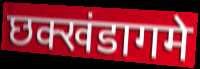
छक्खंडागमे